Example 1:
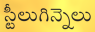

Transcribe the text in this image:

స్టీలుగిన్నెలు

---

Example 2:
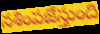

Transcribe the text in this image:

నశింపజేస్తుంది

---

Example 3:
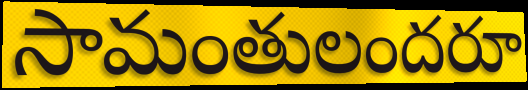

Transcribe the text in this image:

సామంతులందరూ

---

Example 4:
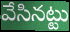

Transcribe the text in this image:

వేసినట్టు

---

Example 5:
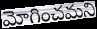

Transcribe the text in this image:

మోగించమని